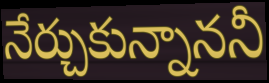
నేర్చుకున్నాననీ